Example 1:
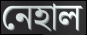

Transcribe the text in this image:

নেহাল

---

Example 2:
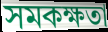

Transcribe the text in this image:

সমকক্ষতা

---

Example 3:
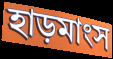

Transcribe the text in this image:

হাড়মাংস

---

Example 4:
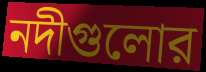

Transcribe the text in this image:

নদীগুলোর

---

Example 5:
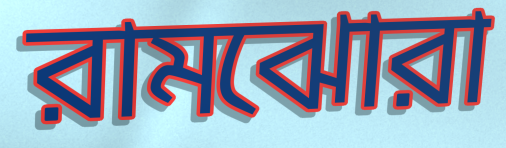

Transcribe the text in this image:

রামঝোরা